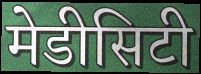
मेडीसिटी